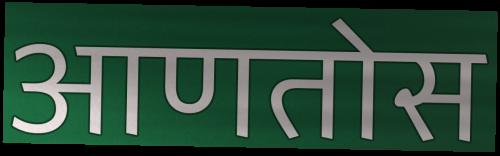
आणतोस